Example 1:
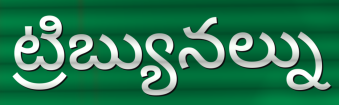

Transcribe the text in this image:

ట్రిబ్యునల్ను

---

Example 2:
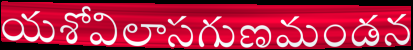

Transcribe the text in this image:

యశోవిలాసగుణమండన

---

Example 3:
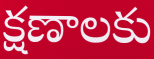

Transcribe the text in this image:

క్షణాలకు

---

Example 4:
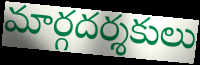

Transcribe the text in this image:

మార్గదర్శకులు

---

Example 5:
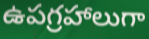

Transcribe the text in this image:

ఉపగ్రహాలుగా